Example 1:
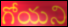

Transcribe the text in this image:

గోయని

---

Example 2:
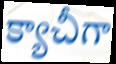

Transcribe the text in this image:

క్యాచీగా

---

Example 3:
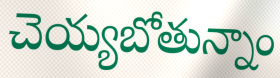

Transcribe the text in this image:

చెయ్యబోతున్నాం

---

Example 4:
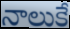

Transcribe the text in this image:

నాలుకే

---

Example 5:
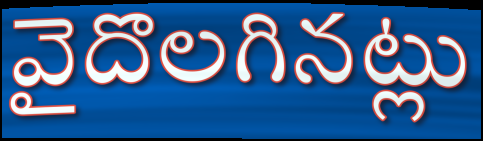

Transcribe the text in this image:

వైదొలగినట్లు